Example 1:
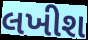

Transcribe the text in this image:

લખીશ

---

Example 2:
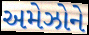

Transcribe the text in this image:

અમેઝોને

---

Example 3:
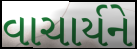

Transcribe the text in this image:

વાચાર્યને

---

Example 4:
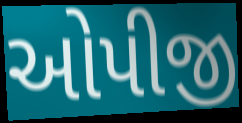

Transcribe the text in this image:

ઓપીજી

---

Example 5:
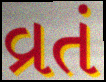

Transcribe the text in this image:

વ્રતં